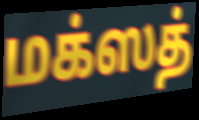
மக்ஸத்